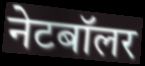
नेटबॉलर